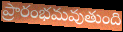
ప్రారంభమవుతుంది